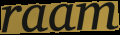
raam